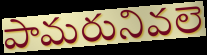
పామరునివలె